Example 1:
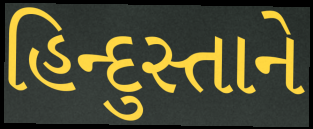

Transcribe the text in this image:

હિન્દુસ્તાને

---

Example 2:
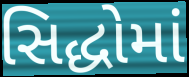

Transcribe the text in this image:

સિદ્ધોમાં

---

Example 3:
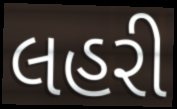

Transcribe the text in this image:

લહરી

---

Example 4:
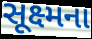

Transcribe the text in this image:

સૂક્ષ્મના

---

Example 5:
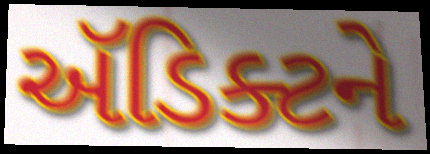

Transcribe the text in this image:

ઍડિક્ટને